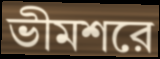
ভীমশরে